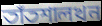
তাঁতশালখন